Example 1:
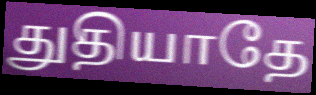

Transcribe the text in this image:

துதியாதே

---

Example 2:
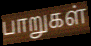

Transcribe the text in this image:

பாறுகள்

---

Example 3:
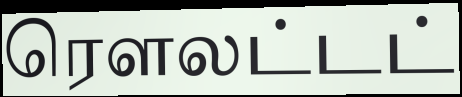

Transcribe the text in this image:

ரௌலட்டட்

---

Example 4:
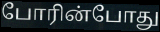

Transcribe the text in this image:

போரின்போது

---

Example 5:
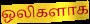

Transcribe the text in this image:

ஒலிகளாக